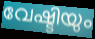
വേഷ്ടിയും